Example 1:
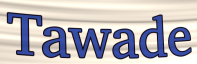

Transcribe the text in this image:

Tawade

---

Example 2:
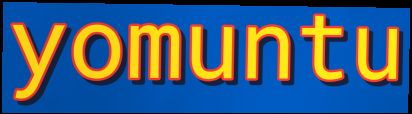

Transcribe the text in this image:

yomuntu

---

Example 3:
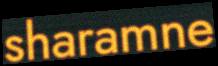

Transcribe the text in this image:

sharamne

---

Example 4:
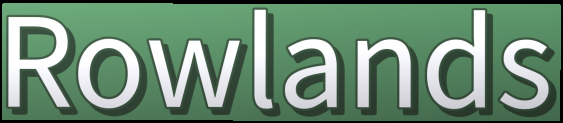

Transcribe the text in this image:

Rowlands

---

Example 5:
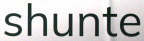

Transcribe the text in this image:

shunte